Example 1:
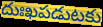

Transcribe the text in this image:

దుఃఖపడుటకు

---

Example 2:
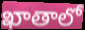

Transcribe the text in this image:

ఖాతాలో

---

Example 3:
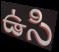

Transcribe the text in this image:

ఉసి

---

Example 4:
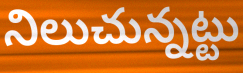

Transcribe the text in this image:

నిలుచున్నట్టు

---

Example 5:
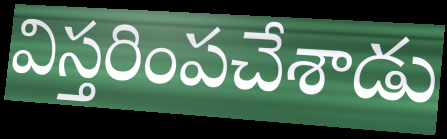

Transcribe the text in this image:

విస్తరింపచేశాడు